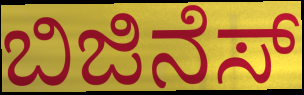
ಬಿಜಿನೆಸ್